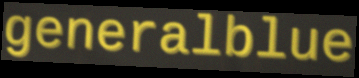
generalblue